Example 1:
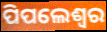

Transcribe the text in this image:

ପିପଲେଶ୍ୱର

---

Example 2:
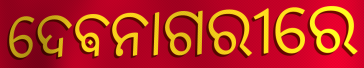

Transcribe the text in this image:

ଦେଵନାଗରୀରେ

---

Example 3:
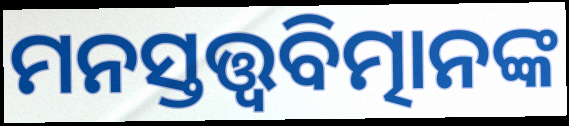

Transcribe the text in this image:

ମନସ୍ତତ୍ତ୍ବବିତ୍ମାନଙ୍କ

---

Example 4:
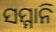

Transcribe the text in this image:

ସମ୍ମାନି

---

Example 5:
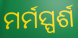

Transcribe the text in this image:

ମର୍ମସ୍ପର୍ଶ